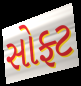
સોફ્ટ